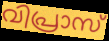
വിപ്രാസ്